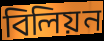
বিলিয়ন